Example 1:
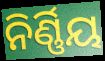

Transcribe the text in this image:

ନିର୍ଣ୍ଣିୟ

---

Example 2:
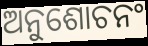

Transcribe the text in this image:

ଅନୁଶୋଚନଂ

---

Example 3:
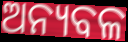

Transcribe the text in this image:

ଅନ୍ୟବଳ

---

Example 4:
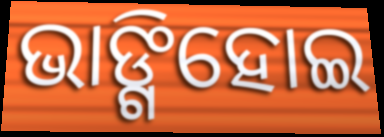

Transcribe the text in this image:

ଭାଙ୍ଗିହୋଇ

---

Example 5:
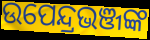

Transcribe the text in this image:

ଉପେନ୍ଦ୍ରଭଞ୍ଜଙ୍କ